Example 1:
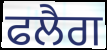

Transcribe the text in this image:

ਫਲੈਗ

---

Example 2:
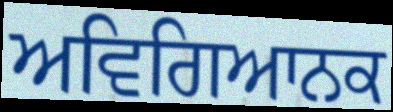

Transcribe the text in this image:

ਅਵਿਗਿਆਨਕ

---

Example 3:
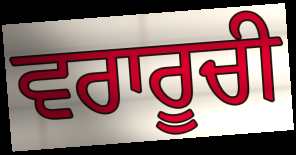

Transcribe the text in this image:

ਵਰਾਰੂਚੀ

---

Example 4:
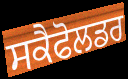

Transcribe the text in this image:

ਸਕੈਫੋਲਡਰ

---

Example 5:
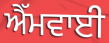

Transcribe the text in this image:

ਐੱਮਵਾਈ